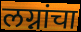
लग्नांचा